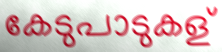
കേടുപാടുകള്